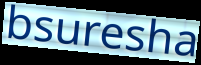
bsuresha